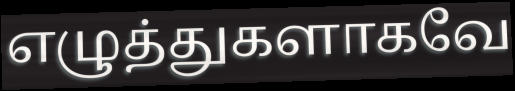
எழுத்துகளாகவே